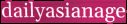
dailyasianage